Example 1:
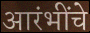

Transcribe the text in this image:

आरंभींचे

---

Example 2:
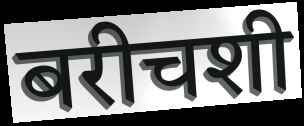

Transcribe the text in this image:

बरीचशी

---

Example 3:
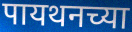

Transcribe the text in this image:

पायथनच्या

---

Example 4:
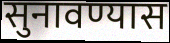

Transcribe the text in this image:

सुनावण्यास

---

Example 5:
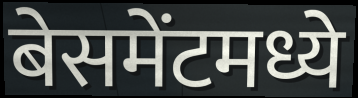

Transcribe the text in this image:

बेसमेंटमध्ये